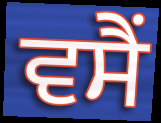
ਵਸੈਂ